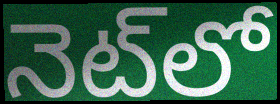
నెట్‌లో